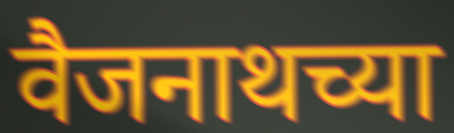
वैजनाथच्या